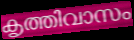
കൃത്തിവാസം